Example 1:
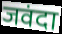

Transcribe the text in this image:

जवंदा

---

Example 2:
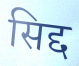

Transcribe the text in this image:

सिद्द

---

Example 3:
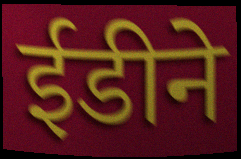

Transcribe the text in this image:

ईडीने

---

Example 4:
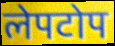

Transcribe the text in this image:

लेपटोप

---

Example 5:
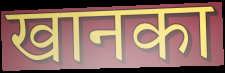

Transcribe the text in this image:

खानका